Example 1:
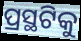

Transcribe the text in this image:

ପ୍ରସ୍ଥଟିକୁ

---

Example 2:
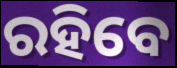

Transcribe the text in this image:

ରହିବେ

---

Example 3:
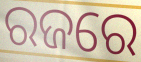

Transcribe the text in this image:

ରଜରେ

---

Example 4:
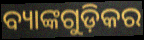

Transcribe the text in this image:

ବ୍ୟାଙ୍କଗୁଡ଼ିକର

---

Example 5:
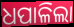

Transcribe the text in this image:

ଧପାଳିଲା